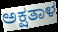
ಅಕ್ಷತಾಳ